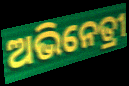
ଅଭିନେତ୍ରୀ